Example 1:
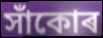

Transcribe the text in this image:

সাঁকোৰ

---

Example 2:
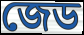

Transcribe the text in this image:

জেড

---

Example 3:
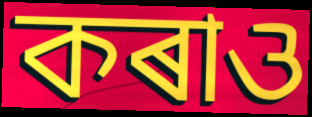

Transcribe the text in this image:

কৰাও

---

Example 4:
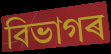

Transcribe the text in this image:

বিভাগৰ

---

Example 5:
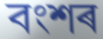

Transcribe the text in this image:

বংশৰ